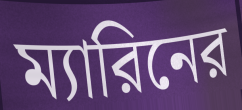
ম্যারিনের